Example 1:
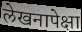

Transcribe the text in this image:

लेखनापेक्षा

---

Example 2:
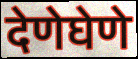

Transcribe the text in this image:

देणेघेणे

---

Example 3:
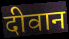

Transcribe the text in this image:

दीवान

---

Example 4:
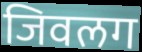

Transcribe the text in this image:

जिवलग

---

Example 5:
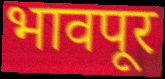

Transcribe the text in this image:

भावपूर